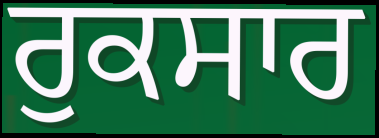
ਰੁਕਸਾਰ